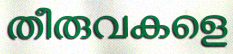
തീരുവകളെ